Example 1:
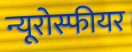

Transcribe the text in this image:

न्यूरोस्फीयर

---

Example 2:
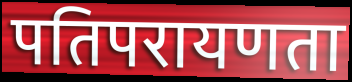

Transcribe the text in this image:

पतिपरायणता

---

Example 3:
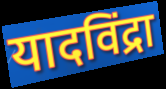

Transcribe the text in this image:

यादविंद्रा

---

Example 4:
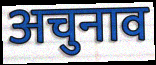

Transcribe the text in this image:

अचुनाव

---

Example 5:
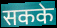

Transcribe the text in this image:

सकके